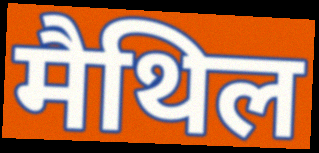
मैथिल